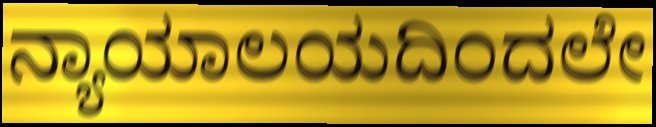
ನ್ಯಾಯಾಲಯದಿಂದಲೇ